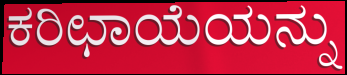
ಕರಿಛಾಯೆಯನ್ನು